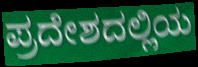
ಪ್ರದೇಶದಲ್ಲಿಯ